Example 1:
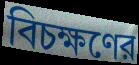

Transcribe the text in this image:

বিচক্ষণের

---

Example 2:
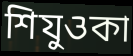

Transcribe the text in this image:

শিযুওকা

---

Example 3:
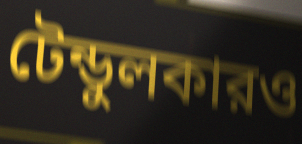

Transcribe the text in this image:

টেন্ডুলকারও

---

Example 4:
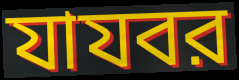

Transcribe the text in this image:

যাযবর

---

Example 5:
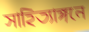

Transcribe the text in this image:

সাহিত্যাঙ্গনে